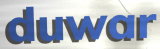
duwar